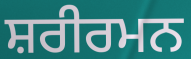
ਸ਼ਰੀਰਮਨ